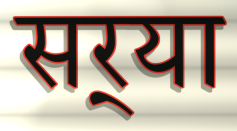
सर्या